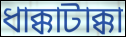
ধাক্কাটাক্কা